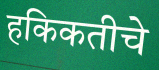
हकिकतीचे